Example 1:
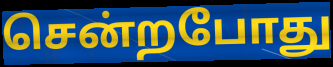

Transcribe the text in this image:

சென்றபோது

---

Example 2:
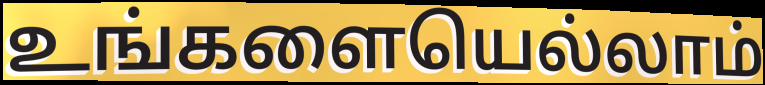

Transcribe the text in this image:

உங்களையெல்லாம்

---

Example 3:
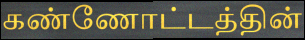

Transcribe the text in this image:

கண்ணோட்டத்தின்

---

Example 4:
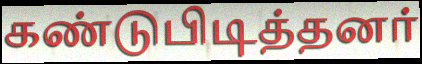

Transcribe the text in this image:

கண்டுபிடித்தனர்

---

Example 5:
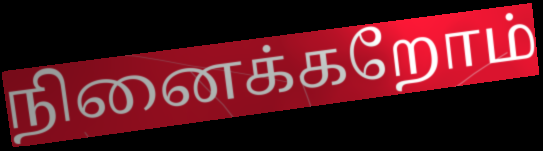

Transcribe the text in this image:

நினைக்கறோம்